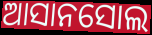
ଆସାନସୋଲ